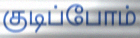
குடிப்போம்